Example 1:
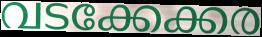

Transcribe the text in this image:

വടക്കേക്കര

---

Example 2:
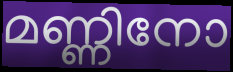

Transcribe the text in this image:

മണ്ണിനോ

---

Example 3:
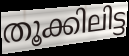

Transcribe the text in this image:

തൂക്കിലിട്ട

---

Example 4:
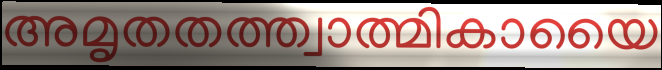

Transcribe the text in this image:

അമൃതതത്ത്വാത്മികായൈ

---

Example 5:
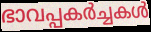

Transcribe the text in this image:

ഭാവപ്പകർച്ചകൾ